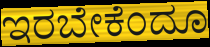
ಇರಬೇಕೆಂದೂ